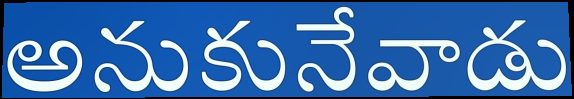
అనుకునేవాడు